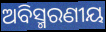
ଅବିସ୍ମରଣୀୟ